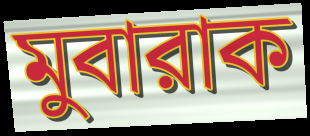
মুবারাক